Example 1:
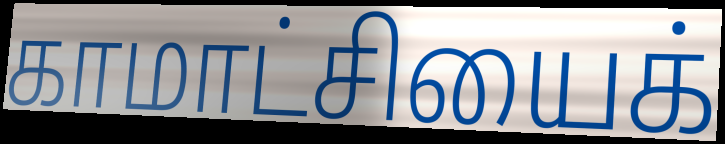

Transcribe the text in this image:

காமாட்சியைக்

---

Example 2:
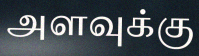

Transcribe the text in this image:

அளவுக்கு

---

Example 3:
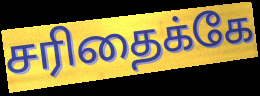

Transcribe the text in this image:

சரிதைக்கே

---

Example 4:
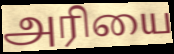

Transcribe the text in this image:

அரியை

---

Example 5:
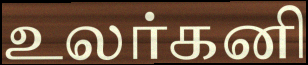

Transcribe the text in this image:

உலர்கனி